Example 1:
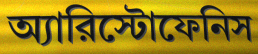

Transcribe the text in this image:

অ্যারিস্টোফেনিস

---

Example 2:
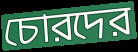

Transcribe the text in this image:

চোরদের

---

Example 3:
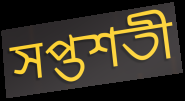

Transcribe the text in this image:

সপ্তশতী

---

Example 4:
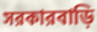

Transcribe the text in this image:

সরকারবাড়ি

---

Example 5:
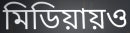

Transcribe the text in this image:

মিডিয়ায়ও